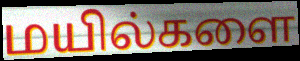
மயில்களை